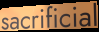
sacrificial